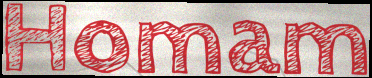
Homam